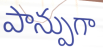
పాన్పుగా